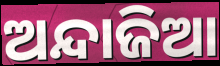
ଅନ୍ଦାଜିଆ